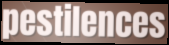
pestilences